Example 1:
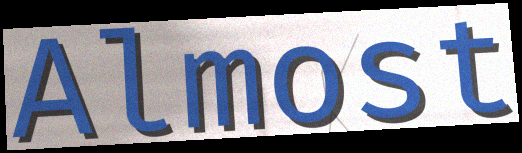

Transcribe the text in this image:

Almost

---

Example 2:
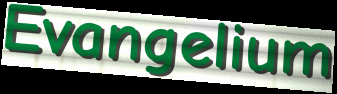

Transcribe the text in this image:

Evangelium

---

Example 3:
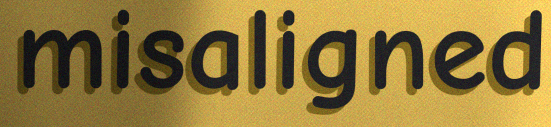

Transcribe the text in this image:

misaligned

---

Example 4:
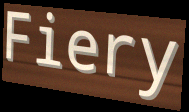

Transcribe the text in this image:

Fiery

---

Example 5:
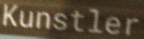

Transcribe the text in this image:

Kunstler